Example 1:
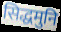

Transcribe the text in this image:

सिद्धमुनि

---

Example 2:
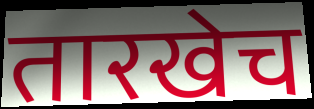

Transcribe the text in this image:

तारखेच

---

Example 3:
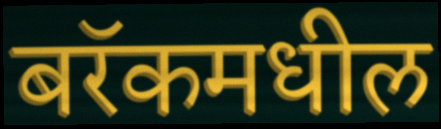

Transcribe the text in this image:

बरॅकमधील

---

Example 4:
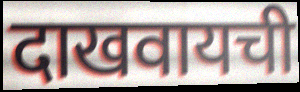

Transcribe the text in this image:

दाखवायची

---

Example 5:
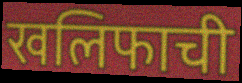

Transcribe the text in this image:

खलिफाची